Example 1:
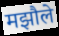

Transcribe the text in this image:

मझौले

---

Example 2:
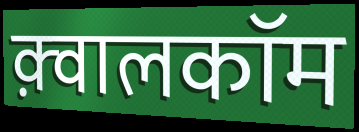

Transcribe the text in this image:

क़्वालकॉम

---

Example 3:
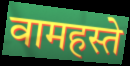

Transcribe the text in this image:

वामहस्ते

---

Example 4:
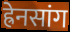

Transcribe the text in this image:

ह्रेनसांग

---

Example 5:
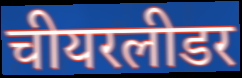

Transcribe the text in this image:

चीयरलीडर